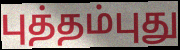
புத்தம்புது